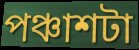
পঞ্চাশটা